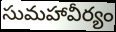
సుమహావీర్యం